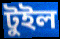
টুইল